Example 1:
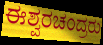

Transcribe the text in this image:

ಈಶ್ವರಚಂದ್ರರು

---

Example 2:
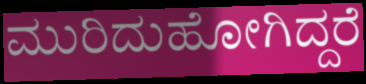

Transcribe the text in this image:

ಮುರಿದುಹೋಗಿದ್ದರೆ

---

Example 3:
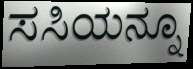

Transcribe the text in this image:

ಸಸಿಯನ್ನೂ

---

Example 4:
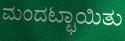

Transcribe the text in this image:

ಮಂದಟ್ಟಾಯಿತು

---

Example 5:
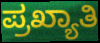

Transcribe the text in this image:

ಪ್ರಖ್ಯಾತಿ